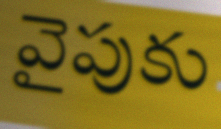
వైపుకు